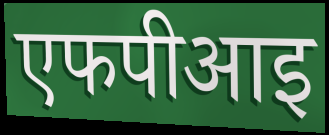
एफपीआइ